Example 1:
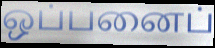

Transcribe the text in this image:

ஒப்பனைப்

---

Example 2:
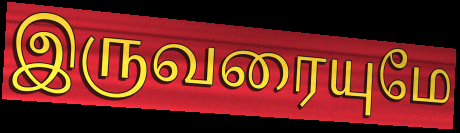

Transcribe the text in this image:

இருவரையுமே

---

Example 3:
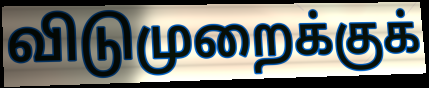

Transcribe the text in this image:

விடுமுறைக்குக்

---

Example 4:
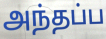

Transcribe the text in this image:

அந்தப்ப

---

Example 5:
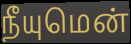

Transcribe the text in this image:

நீயுமென்